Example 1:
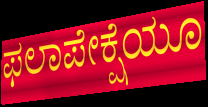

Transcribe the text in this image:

ಫಲಾಪೇಕ್ಷೆಯೂ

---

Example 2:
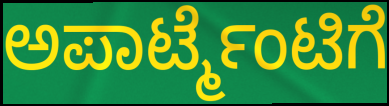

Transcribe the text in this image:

ಅಪಾರ್ಟ್ಮೆಂಟಿಗೆ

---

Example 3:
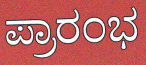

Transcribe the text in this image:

ಪ್ರಾರಂಭ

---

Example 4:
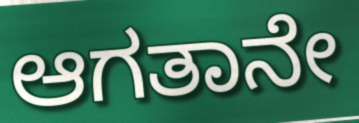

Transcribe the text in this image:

ಆಗತಾನೇ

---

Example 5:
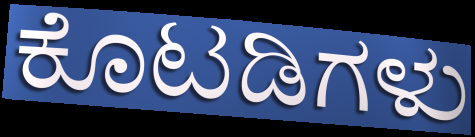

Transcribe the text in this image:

ಕೊಟಡಿಗಳು